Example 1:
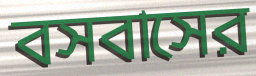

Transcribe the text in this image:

বসবাসের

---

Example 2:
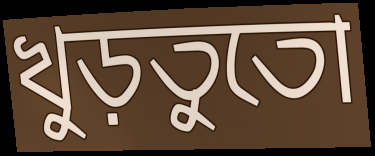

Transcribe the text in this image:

খুড়তুতো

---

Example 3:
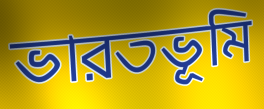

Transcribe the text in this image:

ভারতভূমি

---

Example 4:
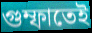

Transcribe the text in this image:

গুম্ফাতেই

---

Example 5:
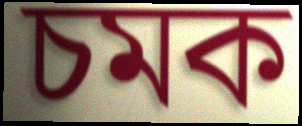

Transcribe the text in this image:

চমক